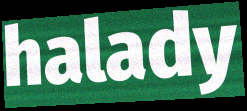
halady